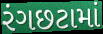
રંગછટામાં